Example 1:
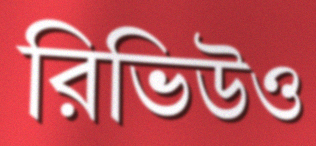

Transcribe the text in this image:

রিভিউও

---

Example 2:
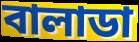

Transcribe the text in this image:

বালাডা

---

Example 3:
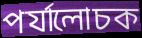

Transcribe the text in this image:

পর্যালোচক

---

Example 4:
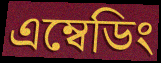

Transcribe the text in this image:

এম্বেডিং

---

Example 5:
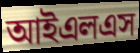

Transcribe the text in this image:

আইএলএস